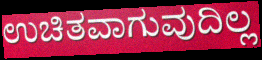
ಉಚಿತವಾಗುವುದಿಲ್ಲ